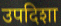
उपदिशा